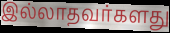
இல்லாதவர்களது